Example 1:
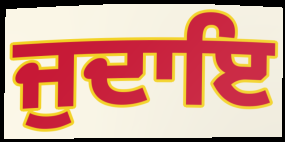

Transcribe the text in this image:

ਜੁਦਾਇ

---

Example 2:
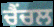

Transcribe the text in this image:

ਚੈਂਚਲ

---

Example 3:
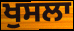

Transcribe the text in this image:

ਖੁਸਲਾ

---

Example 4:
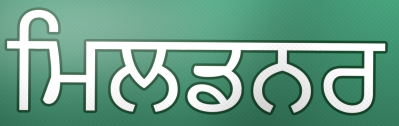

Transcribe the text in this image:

ਮਿਲਡਨਰ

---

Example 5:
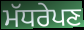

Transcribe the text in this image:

ਮੱਧਰੇਪਣ